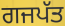
ਗਜਪੱਤ